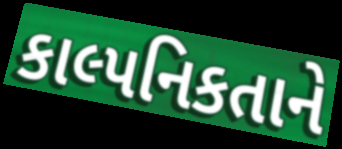
કાલ્પનિકતાને